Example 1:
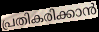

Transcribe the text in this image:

പ്രതികരിക്കാൻ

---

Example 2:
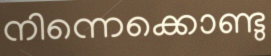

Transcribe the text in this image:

നിന്നെക്കൊണ്ടു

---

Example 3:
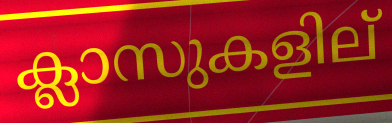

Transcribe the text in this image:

ക്ലാസുകളില്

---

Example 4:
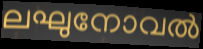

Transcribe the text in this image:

ലഘുനോവൽ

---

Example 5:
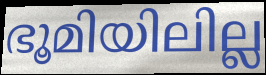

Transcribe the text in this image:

ഭൂമിയിലില്ല